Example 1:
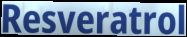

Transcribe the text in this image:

Resveratrol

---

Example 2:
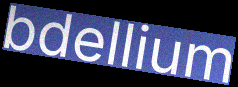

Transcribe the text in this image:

bdellium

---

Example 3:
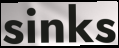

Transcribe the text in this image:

sinks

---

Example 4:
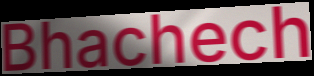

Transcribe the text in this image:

Bhachech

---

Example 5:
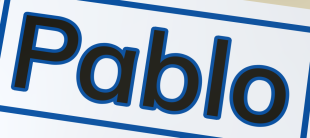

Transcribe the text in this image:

Pablo